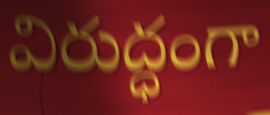
విరుద్ధంగా